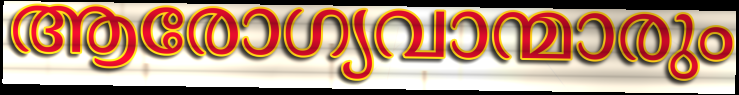
ആരോഗ്യവാന്മാരും